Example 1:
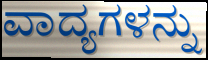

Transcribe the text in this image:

ವಾದ್ಯಗಳನ್ನು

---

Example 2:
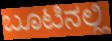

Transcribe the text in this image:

ಬೂಟಿನಲ್ಲಿ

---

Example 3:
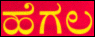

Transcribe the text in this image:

ಹೆಗಲ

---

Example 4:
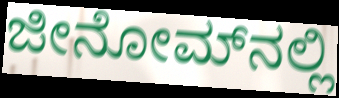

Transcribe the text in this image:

ಜೀನೋಮ್‌ನಲ್ಲಿ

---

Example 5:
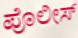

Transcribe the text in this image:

ಪೊಲೀಸ್